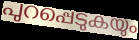
പുറപ്പെടുകയും